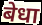
बेधा